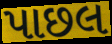
પાછલ